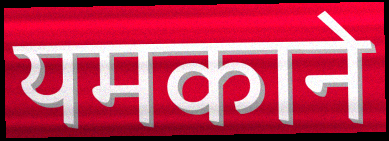
यमकाने